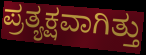
ಪ್ರತ್ಯಕ್ಷವಾಗಿತ್ತು